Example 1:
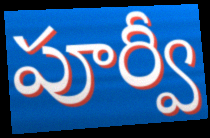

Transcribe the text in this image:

పూర్వీ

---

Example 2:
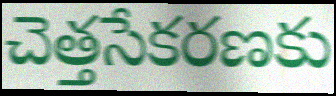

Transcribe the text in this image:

చెత్తసేకరణకు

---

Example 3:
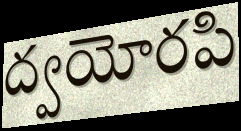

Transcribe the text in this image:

ద్వయోరపి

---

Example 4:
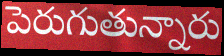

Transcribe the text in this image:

పెరుగుతున్నారు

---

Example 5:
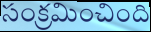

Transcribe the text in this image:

సంక్రమించింది